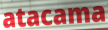
atacama